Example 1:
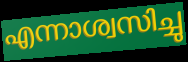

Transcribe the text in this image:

എന്നാശ്വസിച്ചു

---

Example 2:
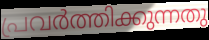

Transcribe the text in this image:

പ്രവർത്തിക്കുന്നതു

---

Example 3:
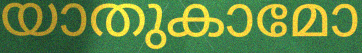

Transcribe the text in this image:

യാതുകാമോ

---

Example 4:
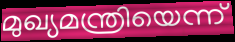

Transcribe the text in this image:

മുഖ്യമന്ത്രിയെന്ന്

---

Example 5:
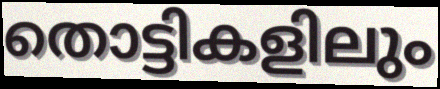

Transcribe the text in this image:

തൊട്ടികളിലും